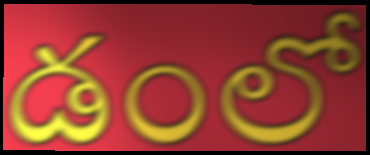
డంలో